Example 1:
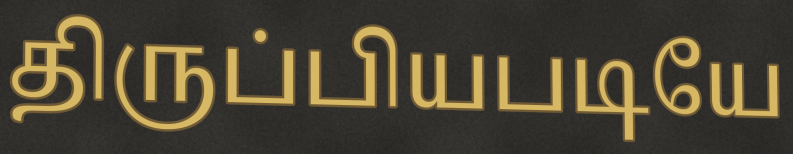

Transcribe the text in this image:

திருப்பியபடியே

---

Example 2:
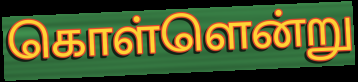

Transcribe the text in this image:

கொள்ளென்று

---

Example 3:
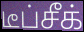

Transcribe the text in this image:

டீப்சீக்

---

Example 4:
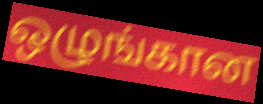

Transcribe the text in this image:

ஒழுங்கான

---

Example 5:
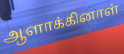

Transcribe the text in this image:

ஆளாக்கினாள்